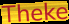
Theke